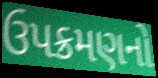
ઉપક્રમણનો